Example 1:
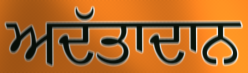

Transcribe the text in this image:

ਅਦੱਤਾਦਾਨ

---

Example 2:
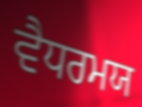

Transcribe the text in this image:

ਵੈਧਰਮਯ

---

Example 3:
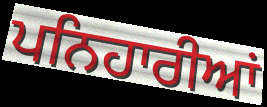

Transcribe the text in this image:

ਪਨਿਹਾਰੀਆਂ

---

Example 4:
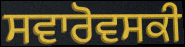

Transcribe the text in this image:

ਸਵਾਰੋਵਸਕੀ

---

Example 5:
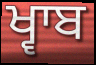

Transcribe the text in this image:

ਖ੍ਵਾਬ